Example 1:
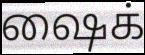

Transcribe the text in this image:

ஷைக்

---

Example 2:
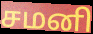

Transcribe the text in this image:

சமனி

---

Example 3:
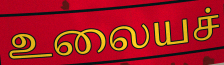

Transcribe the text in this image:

உலையச்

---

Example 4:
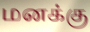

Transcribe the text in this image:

மனக்கு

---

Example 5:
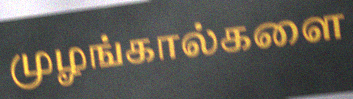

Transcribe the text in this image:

முழங்கால்களை